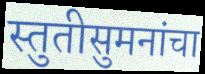
स्तुतीसुमनांचा